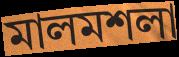
মালমশলা